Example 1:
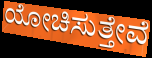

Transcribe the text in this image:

ಯೋಚಿಸುತ್ತೇವೆ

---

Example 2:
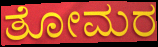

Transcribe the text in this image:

ತೋಮರ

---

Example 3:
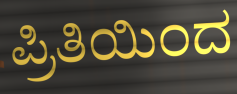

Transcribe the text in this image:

ಪ್ರಿತಿಯಿಂದ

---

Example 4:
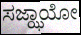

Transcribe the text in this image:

ಸಜ್ಝಾಯೋ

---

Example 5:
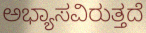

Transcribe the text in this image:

ಅಭ್ಯಾಸವಿರುತ್ತದೆ